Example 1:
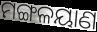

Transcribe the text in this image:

ମଙ୍ଗଳୟାଣ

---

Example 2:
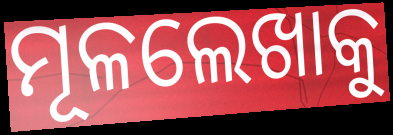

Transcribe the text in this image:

ମୂଳଲେଖାକୁ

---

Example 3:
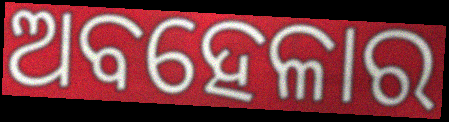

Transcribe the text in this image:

ଅବହେଳାର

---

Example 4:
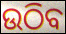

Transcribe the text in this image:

ଉଠିବ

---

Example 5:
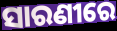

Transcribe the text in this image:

ସାରଣୀରେ